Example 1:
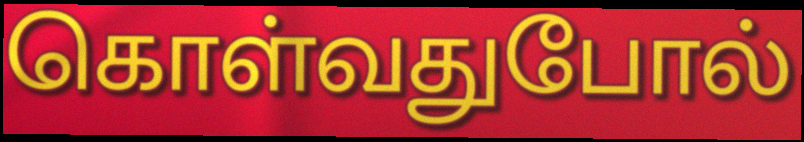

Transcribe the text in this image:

கொள்வதுபோல்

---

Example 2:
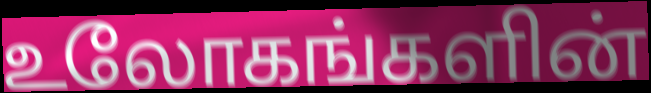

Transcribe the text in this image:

உலோகங்களின்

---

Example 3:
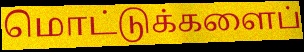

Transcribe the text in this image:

மொட்டுக்களைப்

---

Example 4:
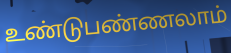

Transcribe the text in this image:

உண்டுபண்ணலாம்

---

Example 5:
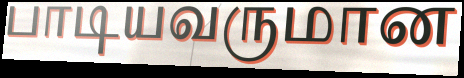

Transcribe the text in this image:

பாடியவருமான